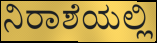
ನಿರಾಶೆಯಲ್ಲಿ